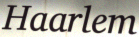
Haarlem